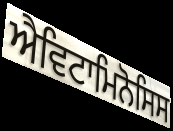
ਐਵਿਟਾਮਿਨੋਸਿਸ